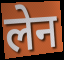
लेन